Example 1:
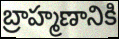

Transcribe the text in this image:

బ్రాహ్మణానికి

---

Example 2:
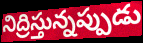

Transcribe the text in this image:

నిద్రిస్తున్నప్పుడు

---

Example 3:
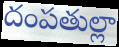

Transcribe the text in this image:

దంపతుల్లా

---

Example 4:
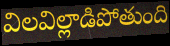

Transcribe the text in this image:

విలవిల్లాడిపోతుంది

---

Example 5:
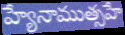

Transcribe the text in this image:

హ్యేనాముత్సహే